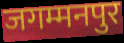
जगम्मनपुर